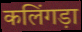
कलिंगड़ा